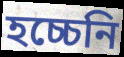
হচ্চেনি